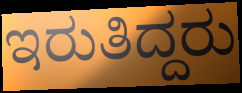
ಇರುತಿದ್ದರು